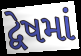
દ્વેષમાં